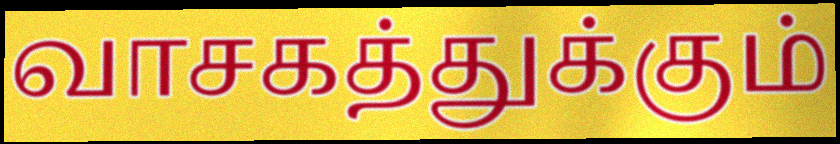
வாசகத்துக்கும்